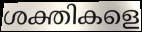
ശക്തികളെ